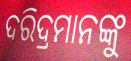
ଦରିଦ୍ରମାନଙ୍କୁ